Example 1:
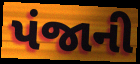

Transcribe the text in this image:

પંજાની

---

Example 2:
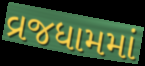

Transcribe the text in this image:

વ્રજધામમાં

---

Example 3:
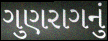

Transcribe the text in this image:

ગુણરાગનું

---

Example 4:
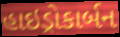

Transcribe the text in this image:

હાઇડ્રોકાર્બન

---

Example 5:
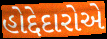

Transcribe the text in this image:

હોદ્દેદારોએ